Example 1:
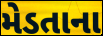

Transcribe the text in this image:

મેડતાના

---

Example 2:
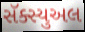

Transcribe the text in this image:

સૅક્સ્યુઅલ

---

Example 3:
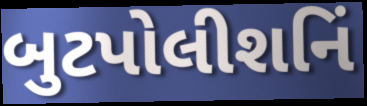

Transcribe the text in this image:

બુટપોલીશનિં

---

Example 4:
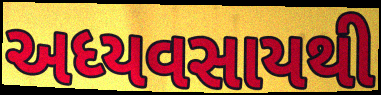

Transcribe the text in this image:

અધ્યવસાયથી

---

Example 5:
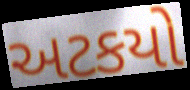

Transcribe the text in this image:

અટકયો